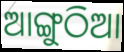
ଆଙ୍ଗୁଠିଆ